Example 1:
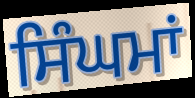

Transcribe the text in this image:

ਸਿੰਘਮਾਂ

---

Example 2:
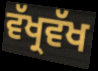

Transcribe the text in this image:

ਵੱਖ੍ਰਵੱਖ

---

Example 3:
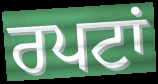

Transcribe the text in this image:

ਰਪਟਾਂ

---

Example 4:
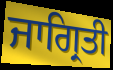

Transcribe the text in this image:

ਜਾਗ੍ਰਿਤੀ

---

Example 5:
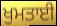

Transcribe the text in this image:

ਖੁਮਤਾਈ